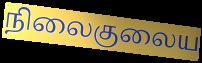
நிலைகுலைய